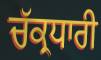
ਚੱਕ੍ਰਧਾਰੀ